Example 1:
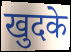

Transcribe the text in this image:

खुदके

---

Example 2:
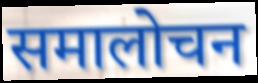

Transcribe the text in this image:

समालोचन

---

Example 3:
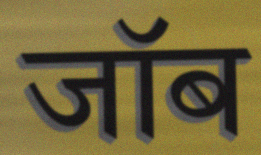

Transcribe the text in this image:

जॉब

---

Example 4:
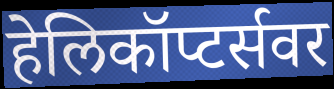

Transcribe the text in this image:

हेलिकॉप्टर्सवर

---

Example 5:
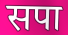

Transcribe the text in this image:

सपा